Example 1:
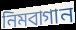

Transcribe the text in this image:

নিমবাগান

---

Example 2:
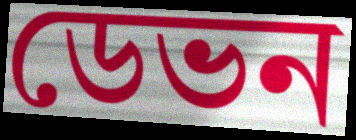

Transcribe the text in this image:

ডেভন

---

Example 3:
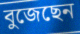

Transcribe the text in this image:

বুজেছেন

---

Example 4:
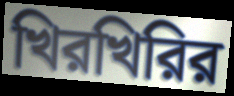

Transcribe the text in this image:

খিরখিরির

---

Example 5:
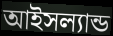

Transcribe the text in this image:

আইসল্যান্ড